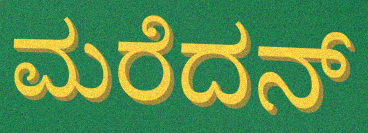
ಮರೆದನ್